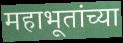
महाभूतांच्या